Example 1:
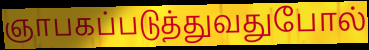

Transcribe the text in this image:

ஞாபகப்படுத்துவதுபோல்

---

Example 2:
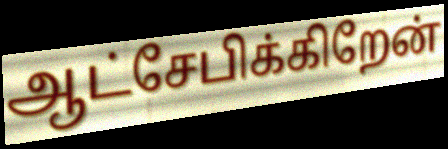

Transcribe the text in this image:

ஆட்சேபிக்கிறேன்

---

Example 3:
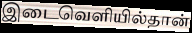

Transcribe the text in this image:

இடைவெளியில்தான்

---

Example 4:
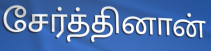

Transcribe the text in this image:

சேர்த்தினான்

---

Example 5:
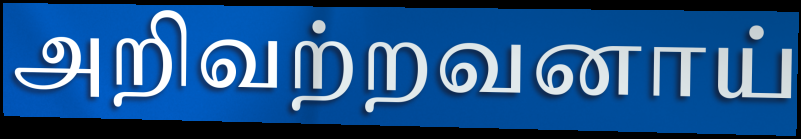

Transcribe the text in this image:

அறிவற்றவனாய்